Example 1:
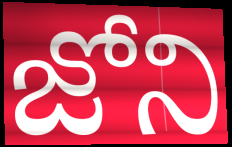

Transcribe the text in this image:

జోని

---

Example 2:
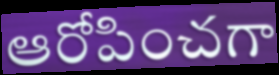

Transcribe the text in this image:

ఆరోపించగా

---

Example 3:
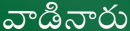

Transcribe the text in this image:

వాడినారు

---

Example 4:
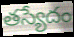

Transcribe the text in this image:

తస్యేదం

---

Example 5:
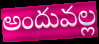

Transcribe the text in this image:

అందువల్ల